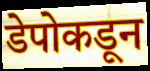
डेपोकडून